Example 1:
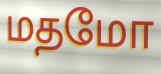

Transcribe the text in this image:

மதமோ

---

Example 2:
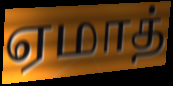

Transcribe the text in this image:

ஏமாத்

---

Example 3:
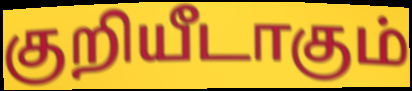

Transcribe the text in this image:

குறியீடாகும்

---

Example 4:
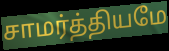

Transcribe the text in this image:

சாமர்த்தியமே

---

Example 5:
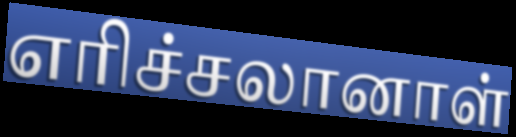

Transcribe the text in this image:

எரிச்சலானாள்